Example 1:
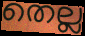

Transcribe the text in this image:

തെല്ല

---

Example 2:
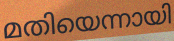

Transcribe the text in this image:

മതിയെന്നായി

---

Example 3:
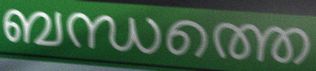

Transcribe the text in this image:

ബന്ധത്തെ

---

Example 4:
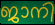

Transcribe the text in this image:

ജാനി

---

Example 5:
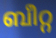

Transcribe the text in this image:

ബീറ്റ